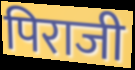
पिराजी